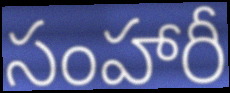
సంహారీ